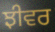
ਝੀਵਰ